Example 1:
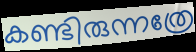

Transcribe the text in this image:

കണ്ടിരുന്നത്രേ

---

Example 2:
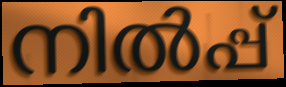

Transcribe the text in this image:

നിൽപ്പ്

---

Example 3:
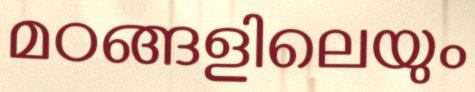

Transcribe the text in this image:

മഠങ്ങളിലെയും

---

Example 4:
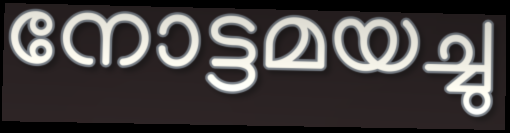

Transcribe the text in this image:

നോട്ടമയച്ചു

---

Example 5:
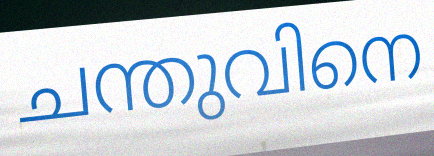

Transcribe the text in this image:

ചന്തുവിനെ